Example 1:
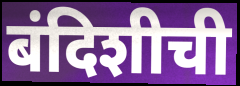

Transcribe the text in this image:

बंदिशीची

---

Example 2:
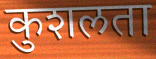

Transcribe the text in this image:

कुशलता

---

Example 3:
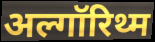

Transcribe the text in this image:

अल्गॉरिथ्म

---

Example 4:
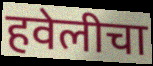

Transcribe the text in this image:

हवेलीचा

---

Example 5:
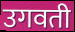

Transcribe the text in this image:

उगवती